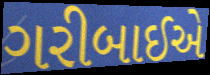
ગરીબાઈએ